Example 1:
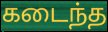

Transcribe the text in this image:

கடைந்த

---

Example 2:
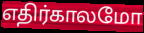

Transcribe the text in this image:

எதிர்காலமோ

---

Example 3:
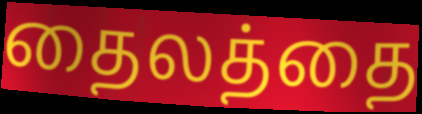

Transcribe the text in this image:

தைலத்தை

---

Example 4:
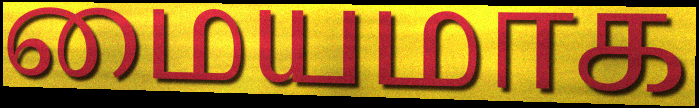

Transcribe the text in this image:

மையமாக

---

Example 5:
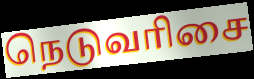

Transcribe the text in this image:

நெடுவரிசை